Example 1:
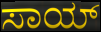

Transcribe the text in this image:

ಸಾಯ್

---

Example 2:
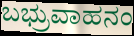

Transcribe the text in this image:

ಬಭ್ರುವಾಹನಂ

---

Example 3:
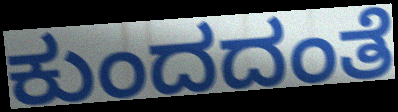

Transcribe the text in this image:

ಕುಂದದಂತೆ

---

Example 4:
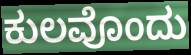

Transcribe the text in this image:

ಕುಲವೊಂದು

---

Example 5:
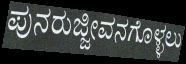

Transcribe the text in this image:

ಪುನರುಜ್ಜೀವನಗೊಳ್ಳಲು